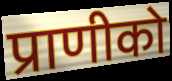
प्राणीको